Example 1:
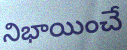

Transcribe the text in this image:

నిభాయించే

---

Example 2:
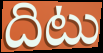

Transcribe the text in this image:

దిటు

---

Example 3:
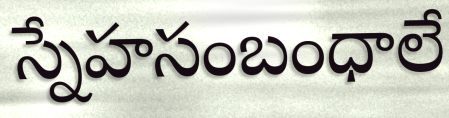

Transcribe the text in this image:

స్నేహసంబంధాలే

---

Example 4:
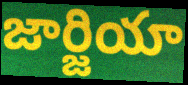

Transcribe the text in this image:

జార్జియా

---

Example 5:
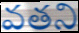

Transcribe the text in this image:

వతని